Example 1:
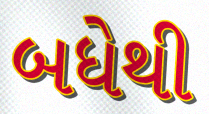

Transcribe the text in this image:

બધેથી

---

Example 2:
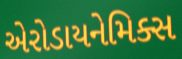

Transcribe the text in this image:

એરોડાયનેમિક્સ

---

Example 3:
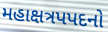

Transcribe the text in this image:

મહાક્ષત્રપપદનો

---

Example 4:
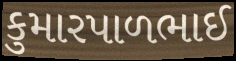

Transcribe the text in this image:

કુમારપાળભાઈ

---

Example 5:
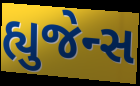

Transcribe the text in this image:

હ્યુજેન્સ